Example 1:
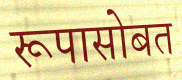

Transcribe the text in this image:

रूपासोबत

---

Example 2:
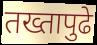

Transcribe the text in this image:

तख्तापुढे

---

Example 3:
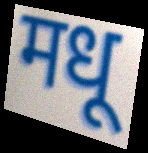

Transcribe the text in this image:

मधू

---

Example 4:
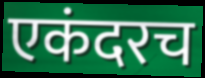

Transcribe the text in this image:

एकंदरच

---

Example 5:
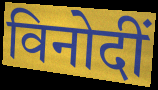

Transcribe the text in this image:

विनोदीं